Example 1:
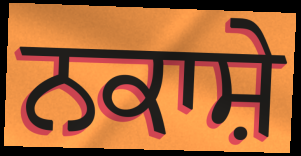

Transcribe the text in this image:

ਨਕਾਸ਼ੇ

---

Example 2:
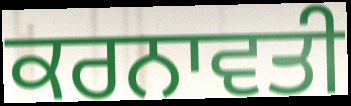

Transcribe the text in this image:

ਕਰਨਾਵਤੀ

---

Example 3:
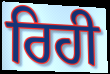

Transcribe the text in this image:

ਰਿਹੀ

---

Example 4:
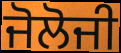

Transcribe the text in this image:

ਜੋਲੋਜੀ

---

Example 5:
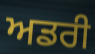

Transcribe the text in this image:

ਅਡਰੀ